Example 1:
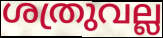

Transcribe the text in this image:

ശത്രുവല്ല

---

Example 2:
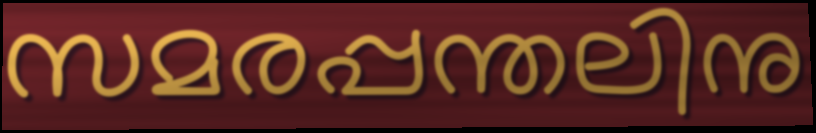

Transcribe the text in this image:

സമരപ്പന്തലിനു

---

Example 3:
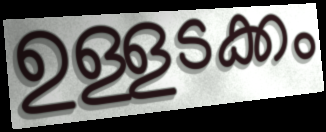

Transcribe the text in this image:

ഉള്ളടക്കം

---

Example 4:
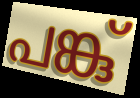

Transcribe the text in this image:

പങ്കു്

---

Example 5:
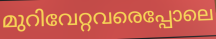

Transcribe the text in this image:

മുറിവേറ്റവരെപ്പോലെ